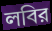
লবির